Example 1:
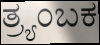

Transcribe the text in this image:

ತ್ರ್ಯಂಬಕ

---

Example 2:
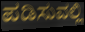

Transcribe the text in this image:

ಪಡಿಸುವಲ್ಲಿ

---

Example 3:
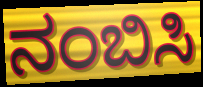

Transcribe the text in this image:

ನಂಬಿಸಿ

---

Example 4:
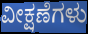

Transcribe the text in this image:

ವೀಕ್ಷಣೆಗಳು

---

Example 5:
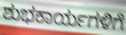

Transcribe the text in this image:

ಶುಭಕಾರ್ಯಗಳಿಗೆ